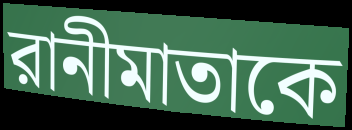
রানীমাতাকে